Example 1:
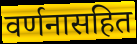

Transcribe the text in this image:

वर्णनासहित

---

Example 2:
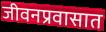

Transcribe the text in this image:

जीवनप्रवासात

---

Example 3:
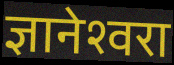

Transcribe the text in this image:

ज्ञानेश्वरा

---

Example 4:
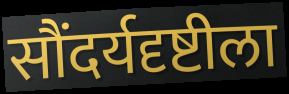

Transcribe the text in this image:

सौंदर्यदृष्टीला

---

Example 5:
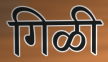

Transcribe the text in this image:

गिळी